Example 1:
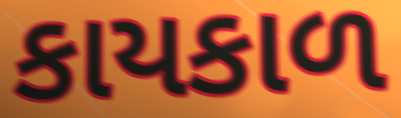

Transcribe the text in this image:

કાયકાળ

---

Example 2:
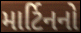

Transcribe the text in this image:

માર્ટિનનો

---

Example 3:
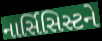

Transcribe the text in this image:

નાર્સિસિસ્ટને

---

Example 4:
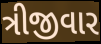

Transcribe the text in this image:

ત્રીજીવાર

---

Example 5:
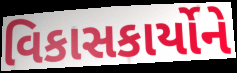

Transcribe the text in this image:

વિકાસકાર્યોને